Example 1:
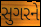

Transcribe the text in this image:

સુગરને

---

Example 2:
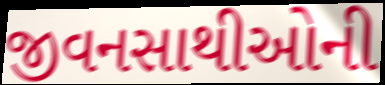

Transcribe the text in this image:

જીવનસાથીઓની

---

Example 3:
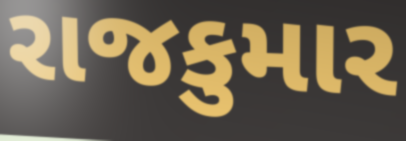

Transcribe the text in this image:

રાજકુમાર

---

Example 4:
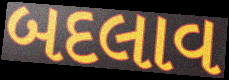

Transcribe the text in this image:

બદલાવ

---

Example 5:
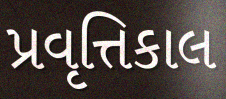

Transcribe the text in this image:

પ્રવૃત્તિકાલ